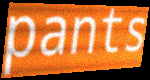
pants